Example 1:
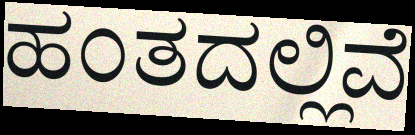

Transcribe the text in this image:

ಹಂತದಲ್ಲಿವೆ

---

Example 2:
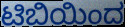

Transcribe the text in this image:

ಟಿಬಿಯಿಂದ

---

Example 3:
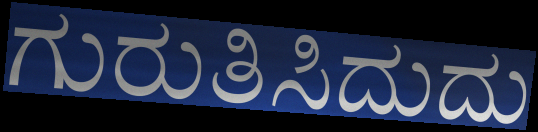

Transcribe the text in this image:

ಗುರುತಿಸಿದುದು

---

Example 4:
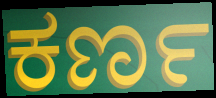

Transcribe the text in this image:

ಕರ್ಣ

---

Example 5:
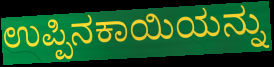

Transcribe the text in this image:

ಉಪ್ಪಿನಕಾಯಿಯನ್ನು